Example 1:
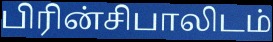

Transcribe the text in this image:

பிரின்சிபாலிடம்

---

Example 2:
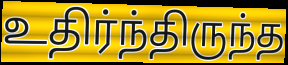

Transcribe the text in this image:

உதிர்ந்திருந்த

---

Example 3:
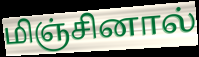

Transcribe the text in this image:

மிஞ்சினால்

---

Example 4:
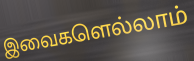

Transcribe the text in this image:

இவைகளெல்லாம்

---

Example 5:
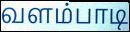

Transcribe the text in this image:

வளம்பாடி